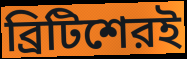
ব্রিটিশেরই